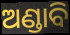
ଅଣ୍ଡାବି